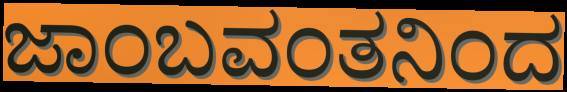
ಜಾಂಬವಂತನಿಂದ